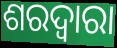
ଶରଦ୍ୱାରା